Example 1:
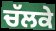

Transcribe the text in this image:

ਚੱਲਕੇ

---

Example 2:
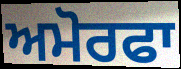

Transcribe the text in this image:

ਅਮੋਰਫਾ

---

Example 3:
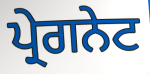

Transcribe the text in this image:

ਪ੍ਰੇਗਨੇਟ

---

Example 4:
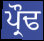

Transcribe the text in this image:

ਪ੍ਰੌਢ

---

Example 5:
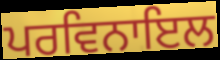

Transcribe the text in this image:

ਪਰਵਿਨਾਇਲ